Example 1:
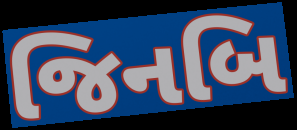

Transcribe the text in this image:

જિનબિ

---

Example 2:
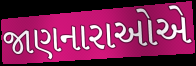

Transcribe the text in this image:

જાણનારાઓએ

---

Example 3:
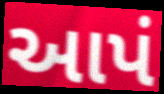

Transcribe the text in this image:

આપં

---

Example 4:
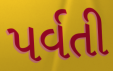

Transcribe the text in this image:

પર્વતી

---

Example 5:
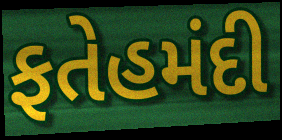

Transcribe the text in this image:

ફતેહમંદી